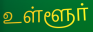
உள்ளூர்